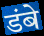
डंबे